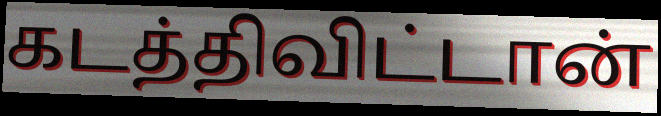
கடத்திவிட்டான்